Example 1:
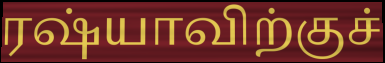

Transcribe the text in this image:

ரஷ்யாவிற்குச்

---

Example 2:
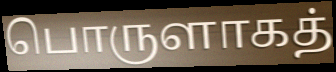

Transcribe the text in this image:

பொருளாகத்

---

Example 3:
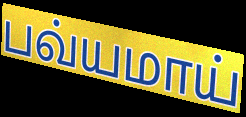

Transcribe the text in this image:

பவ்யமாய்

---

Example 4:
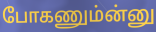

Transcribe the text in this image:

போகணும்ன்னு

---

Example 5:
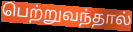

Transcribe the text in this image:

பெற்றுவந்தால்